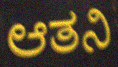
ಆತನಿ